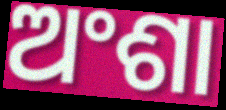
ଅଂଶା